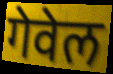
गेवेल